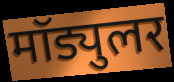
मॉड्युलर